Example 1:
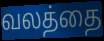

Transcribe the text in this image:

வலத்தை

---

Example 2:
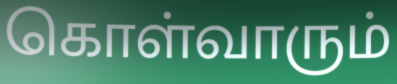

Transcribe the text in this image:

கொள்வாரும்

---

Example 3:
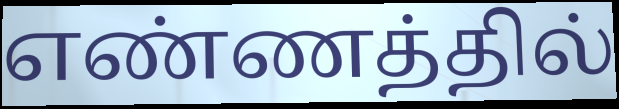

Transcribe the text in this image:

எண்ணத்தில்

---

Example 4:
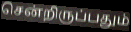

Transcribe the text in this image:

சென்றிருப்பதும்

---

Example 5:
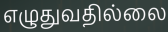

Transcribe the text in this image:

எழுதுவதில்லை